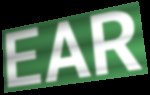
EAR